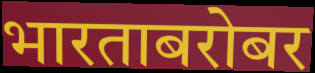
भारताबरोबर